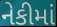
નેકીમાં